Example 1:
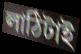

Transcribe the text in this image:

লাঠিটাই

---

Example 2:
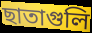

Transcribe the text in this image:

ছাতাগুলি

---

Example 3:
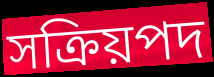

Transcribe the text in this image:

সক্রিয়পদ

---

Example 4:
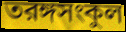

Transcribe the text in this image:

তরঙ্গসংকুল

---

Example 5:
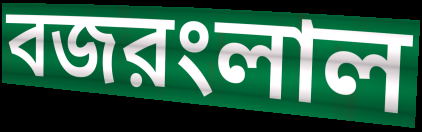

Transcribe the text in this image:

বজরংলাল